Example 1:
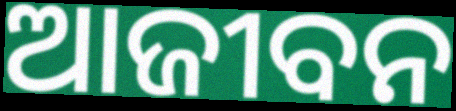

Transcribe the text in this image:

ଆଜୀବନ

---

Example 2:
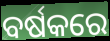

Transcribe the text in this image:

ବର୍ଷକରେ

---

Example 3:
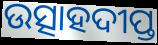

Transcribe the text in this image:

ଉତ୍ସାହଦୀପ୍ତ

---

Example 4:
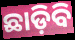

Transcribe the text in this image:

ଛାଡ଼ିବି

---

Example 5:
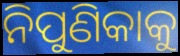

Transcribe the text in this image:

ନିପୁଣିକାକୁ